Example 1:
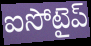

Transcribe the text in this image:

ఐసోటైప్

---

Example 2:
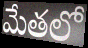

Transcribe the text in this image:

మేతలో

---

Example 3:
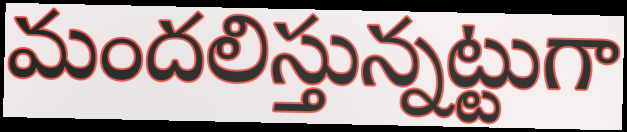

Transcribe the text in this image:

మందలిస్తున్నట్టుగా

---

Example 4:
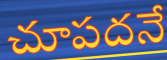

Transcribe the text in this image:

చూపదనే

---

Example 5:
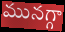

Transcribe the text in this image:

మునగ్గా